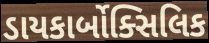
ડાયકાર્બોક્સિલિક